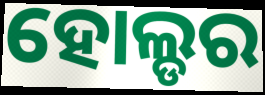
ହୋଲ୍ଡର